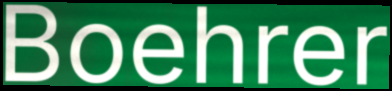
Boehrer